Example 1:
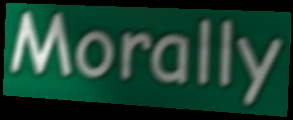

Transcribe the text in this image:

Morally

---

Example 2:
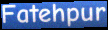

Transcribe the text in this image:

Fatehpur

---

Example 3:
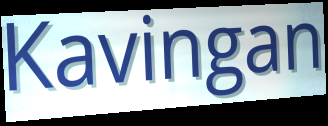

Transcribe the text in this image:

Kavingan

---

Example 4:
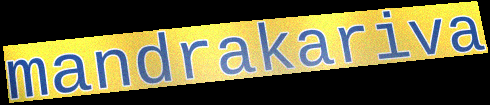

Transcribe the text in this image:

mandrakariva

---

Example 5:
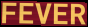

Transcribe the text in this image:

FEVER